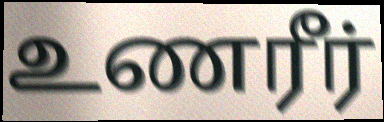
உணரீர்